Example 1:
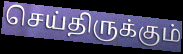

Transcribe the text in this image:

செய்திருக்கும்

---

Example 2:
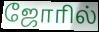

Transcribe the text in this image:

ஜோரில்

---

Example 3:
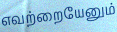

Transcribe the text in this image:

எவற்றையேனும்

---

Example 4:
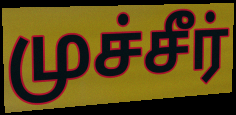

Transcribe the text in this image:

முச்சீர்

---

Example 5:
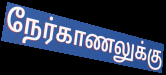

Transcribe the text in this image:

நேர்காணலுக்கு